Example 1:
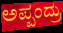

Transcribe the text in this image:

ಅಪ್ಪಂದ್ರು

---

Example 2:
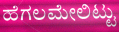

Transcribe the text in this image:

ಹೆಗಲಮೇಲಿಟ್ಟು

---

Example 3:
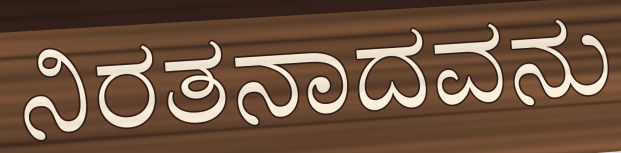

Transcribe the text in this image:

ನಿರತನಾದವನು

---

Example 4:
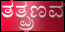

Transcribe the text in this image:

ತತ್ಪ್ರಣವ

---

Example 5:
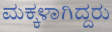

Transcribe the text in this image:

ಮಕ್ಕಳಾಗಿದ್ದರು